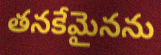
తనకేమైనను